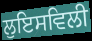
ਲੁਇਸਵਿਲੀ